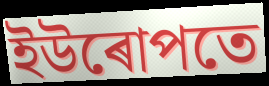
ইউৰোপতে